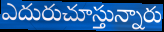
ఎదురుచూస్తున్నారు